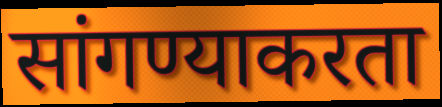
सांगण्याकरता